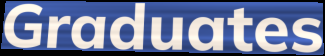
Graduates